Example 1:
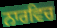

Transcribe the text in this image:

ਨਾਰਵਿਚ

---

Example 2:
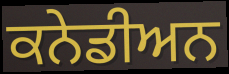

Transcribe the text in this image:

ਕਨੇਡੀਅਨ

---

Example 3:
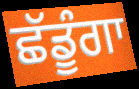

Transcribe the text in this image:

ਛੱਡੂੰਗਾ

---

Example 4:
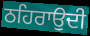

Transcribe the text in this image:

ਠਹਿਰਾਉਦੀ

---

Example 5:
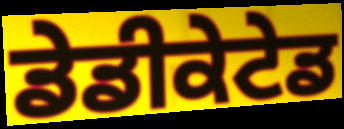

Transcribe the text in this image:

ਡੇਡੀਕੇਟੇਡ